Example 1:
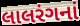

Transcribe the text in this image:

લાલરંગનાં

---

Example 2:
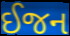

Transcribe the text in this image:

ઈજન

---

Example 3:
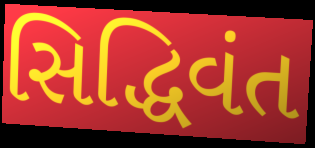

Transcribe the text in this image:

સિદ્ધિવંત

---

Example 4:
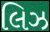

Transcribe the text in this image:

લિઝ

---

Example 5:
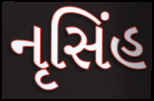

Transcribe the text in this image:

નૃસિંહ